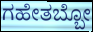
ಗಹೇತಬ್ಬೋ